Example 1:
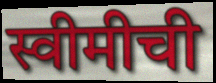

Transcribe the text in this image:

स्वीमीची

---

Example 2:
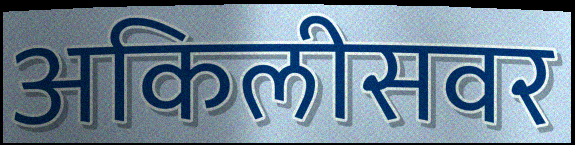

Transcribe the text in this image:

अकिलीसवर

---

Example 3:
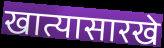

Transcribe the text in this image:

खात्यासारखे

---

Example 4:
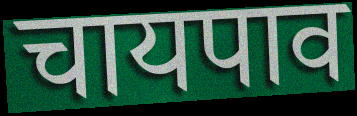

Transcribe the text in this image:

चायपाव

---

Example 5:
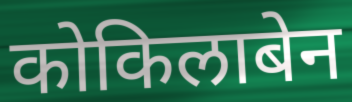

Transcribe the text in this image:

कोकिलाबेन